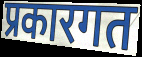
प्रकारगत